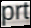
prt